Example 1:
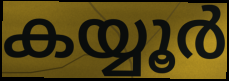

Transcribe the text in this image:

കയ്യൂർ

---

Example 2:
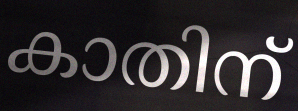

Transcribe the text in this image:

കാതിന്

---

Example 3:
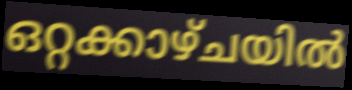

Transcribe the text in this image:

ഒറ്റക്കാഴ്ചയിൽ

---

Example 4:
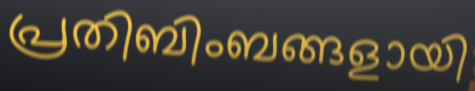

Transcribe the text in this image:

പ്രതിബിംബങ്ങളായി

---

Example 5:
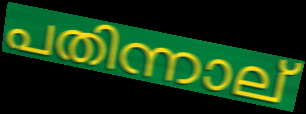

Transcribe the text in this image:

പതിന്നാല്